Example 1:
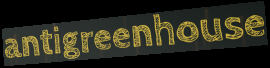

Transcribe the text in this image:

antigreenhouse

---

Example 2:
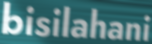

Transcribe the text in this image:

bisilahani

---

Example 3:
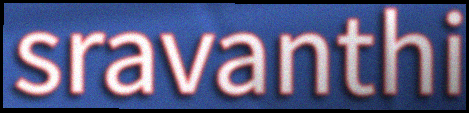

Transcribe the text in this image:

sravanthi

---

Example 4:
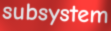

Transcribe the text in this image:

subsystem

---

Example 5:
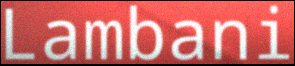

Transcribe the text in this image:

Lambani